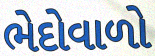
ભેદોવાળો